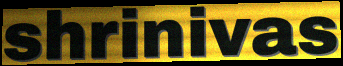
shrinivas